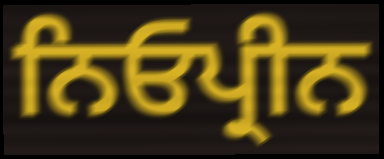
ਨਿਓਪ੍ਰੀਨ